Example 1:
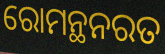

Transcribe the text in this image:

ରୋମନ୍ଥନରତ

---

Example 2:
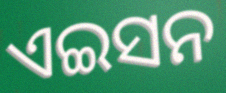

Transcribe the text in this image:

ଏଇସନ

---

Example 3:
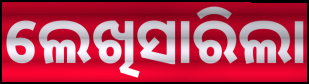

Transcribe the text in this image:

ଲେଖିସାରିଲା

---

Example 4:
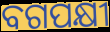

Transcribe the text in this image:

ବଗପକ୍ଷୀ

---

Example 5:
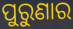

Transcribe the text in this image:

ପୁରୁଣାର